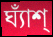
ঘ্যাঁশ্